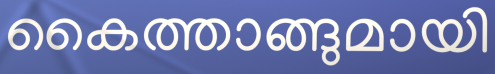
കൈത്താങ്ങുമായി